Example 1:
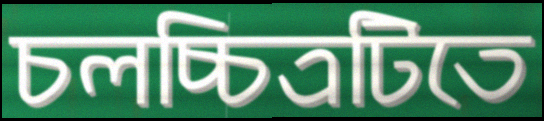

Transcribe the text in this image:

চলচ্চিত্রটিতে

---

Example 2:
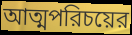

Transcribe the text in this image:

আত্মপরিচয়ের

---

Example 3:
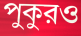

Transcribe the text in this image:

পুকুরও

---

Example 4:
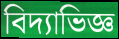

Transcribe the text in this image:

বিদ্যাভিজ্ঞ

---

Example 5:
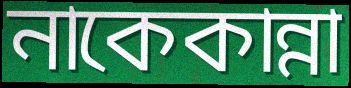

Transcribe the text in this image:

নাকেকান্না